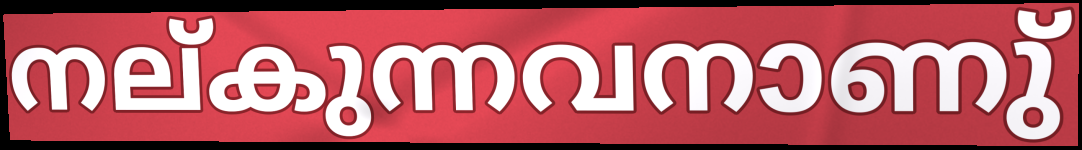
നല്കുന്നവനാണു്